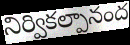
నిర్వికల్పానంద